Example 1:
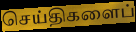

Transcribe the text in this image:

செய்திகளைப்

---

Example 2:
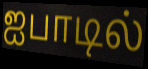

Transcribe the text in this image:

ஐபாடில்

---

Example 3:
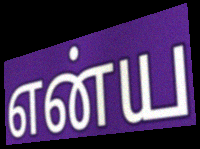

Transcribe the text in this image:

என்ய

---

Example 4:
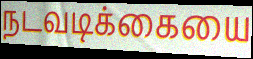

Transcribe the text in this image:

நடவடிக்கையை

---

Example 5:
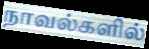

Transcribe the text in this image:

நாவல்களில்